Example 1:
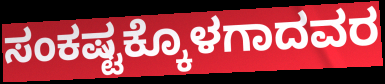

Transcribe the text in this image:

ಸಂಕಷ್ಟಕ್ಕೊಳಗಾದವರ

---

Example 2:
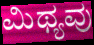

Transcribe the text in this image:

ಮಿಥ್ಯವು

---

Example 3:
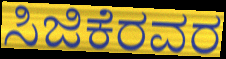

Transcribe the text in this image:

ಸಿಜಿಕೆರವರ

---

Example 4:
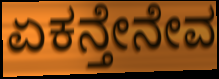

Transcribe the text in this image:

ಏಕನ್ತೇನೇವ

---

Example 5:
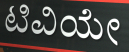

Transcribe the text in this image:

ಟಿವಿಯೇ